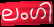
ലംഗി